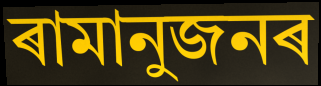
ৰামানুজনৰ